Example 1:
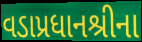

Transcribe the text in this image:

વડાપ્રધાનશ્રીના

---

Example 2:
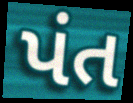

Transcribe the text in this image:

પંત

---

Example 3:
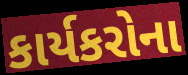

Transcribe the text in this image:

કાર્યકરોના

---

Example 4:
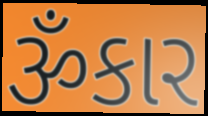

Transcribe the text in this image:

ૐકાર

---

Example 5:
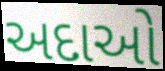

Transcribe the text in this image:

અદાઓ